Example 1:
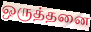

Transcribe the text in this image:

ஒருத்தனை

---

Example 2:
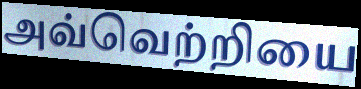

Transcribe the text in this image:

அவ்வெற்றியை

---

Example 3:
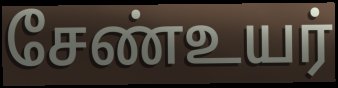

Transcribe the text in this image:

சேண்உயர்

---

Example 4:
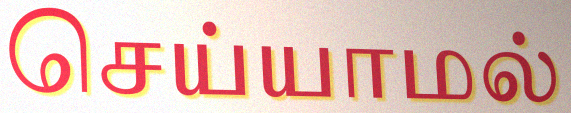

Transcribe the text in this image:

செய்யாமல்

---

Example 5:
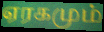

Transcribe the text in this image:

ஏரகமும்